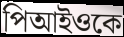
পিআইওকে